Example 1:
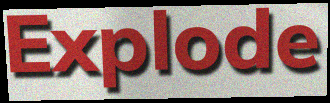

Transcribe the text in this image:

Explode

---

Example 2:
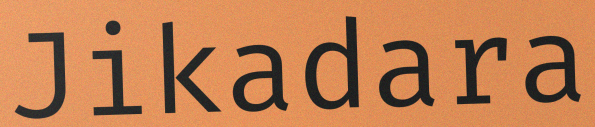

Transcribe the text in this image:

Jikadara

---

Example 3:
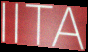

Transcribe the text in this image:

IITA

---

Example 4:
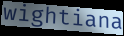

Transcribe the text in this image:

wightiana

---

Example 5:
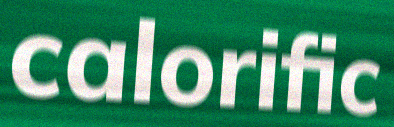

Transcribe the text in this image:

calorific